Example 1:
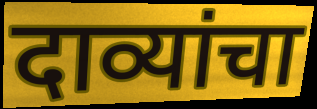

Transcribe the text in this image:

दाव्यांचा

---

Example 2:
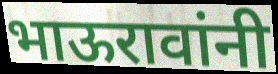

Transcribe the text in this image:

भाऊरावांनी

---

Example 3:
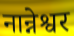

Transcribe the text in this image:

नान्नेश्वर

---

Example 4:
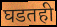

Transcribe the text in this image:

घडतही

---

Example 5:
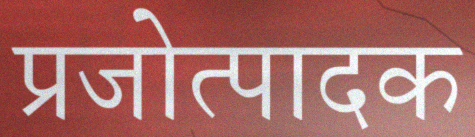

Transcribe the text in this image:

प्रजोत्पादक